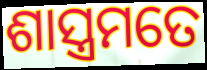
ଶାସ୍ତ୍ରମତେ